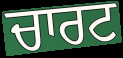
ਚਾਰਟ